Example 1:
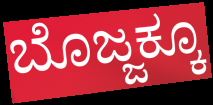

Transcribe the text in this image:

ಬೊಜ್ಜಕ್ಕೂ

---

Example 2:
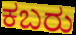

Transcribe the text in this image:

ಕಬರು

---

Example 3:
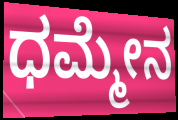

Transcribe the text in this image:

ಧಮ್ಮೇನ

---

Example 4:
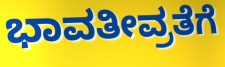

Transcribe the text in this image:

ಭಾವತೀವ್ರತೆಗೆ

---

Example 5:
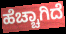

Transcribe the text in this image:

ಹೆಚ್ಚಾಗಿದೆ